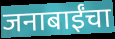
जनाबाईंचा